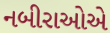
નબીરાઓએ